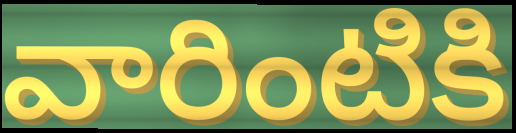
వారింటికి